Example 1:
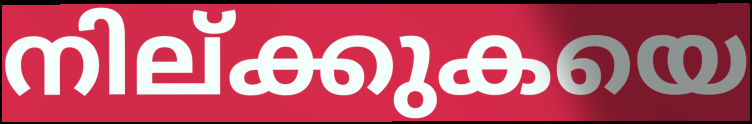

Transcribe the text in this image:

നില്ക്കുകയെ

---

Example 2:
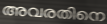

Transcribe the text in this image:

അവരതിനെ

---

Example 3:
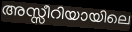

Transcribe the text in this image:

അസ്സീറിയായിലെ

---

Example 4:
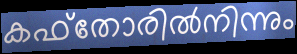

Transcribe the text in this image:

കഫ്തോരിൽനിന്നും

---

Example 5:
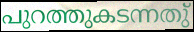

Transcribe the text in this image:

പുറത്തുകടന്നതു്